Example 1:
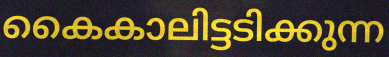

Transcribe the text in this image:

കൈകാലിട്ടടിക്കുന്ന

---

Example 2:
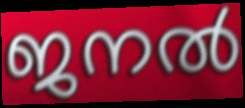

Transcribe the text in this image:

ജനൽ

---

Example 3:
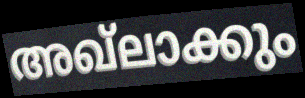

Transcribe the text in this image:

അഖ്ലാക്കും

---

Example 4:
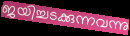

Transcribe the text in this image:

ജയിച്ചടക്കുന്നവന്നു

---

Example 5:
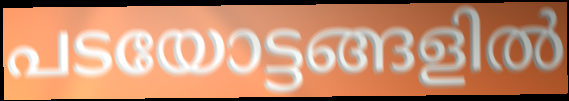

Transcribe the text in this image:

പടയോട്ടങ്ങളിൽ